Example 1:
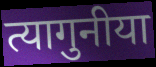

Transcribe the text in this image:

त्यागुनीया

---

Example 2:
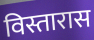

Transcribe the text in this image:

विस्तारास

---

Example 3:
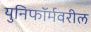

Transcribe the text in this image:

युनिफॉर्मवरील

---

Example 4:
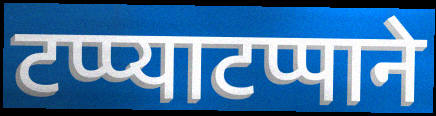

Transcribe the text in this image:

टप्प्याटप्पाने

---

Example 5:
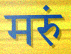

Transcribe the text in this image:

मरुं